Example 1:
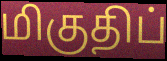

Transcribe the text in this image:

மிகுதிப்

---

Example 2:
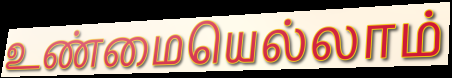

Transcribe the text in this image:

உண்மையெல்லாம்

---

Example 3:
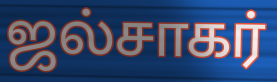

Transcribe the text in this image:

ஜல்சாகர்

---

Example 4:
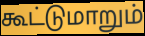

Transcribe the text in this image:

கூட்டுமாறும்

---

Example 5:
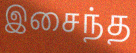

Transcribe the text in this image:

இசைந்த